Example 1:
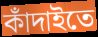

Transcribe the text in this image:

কাঁদাইতে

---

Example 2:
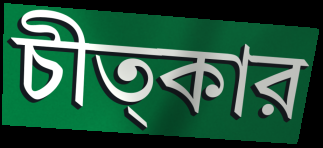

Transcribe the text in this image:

চীত্কার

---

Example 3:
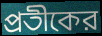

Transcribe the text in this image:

প্রতীকের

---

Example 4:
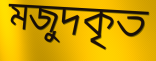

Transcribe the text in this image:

মজুদকৃত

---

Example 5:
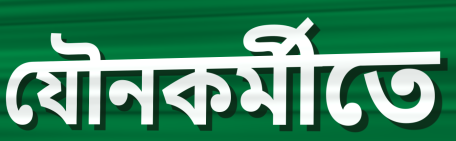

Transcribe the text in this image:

যৌনকর্মীতে